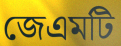
জেএমটি